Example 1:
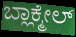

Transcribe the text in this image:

ಬ್ಲಾಕ್ಮೇಲ್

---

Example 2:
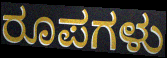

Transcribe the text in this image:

ರೂಪಗಳು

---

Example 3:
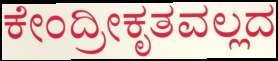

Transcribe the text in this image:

ಕೇಂದ್ರೀಕೃತವಲ್ಲದ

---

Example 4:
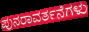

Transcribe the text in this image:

ಪುನರಾವರ್ತನೆಗಳು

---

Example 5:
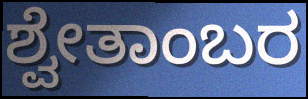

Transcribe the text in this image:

ಶ್ವೇತಾಂಬರ